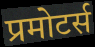
प्रमोटर्स